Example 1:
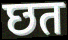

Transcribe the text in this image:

छत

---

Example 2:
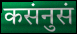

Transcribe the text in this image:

कसंनुसं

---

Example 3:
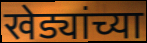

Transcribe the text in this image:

खेड्यांच्या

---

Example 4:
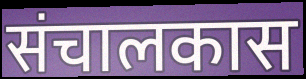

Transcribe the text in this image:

संचालकास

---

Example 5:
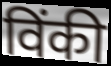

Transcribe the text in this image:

विंकी